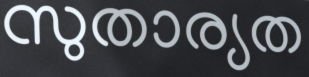
സുതാര്യത